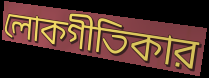
লোকগীতিকার